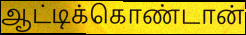
ஆட்டிக்கொண்டான்